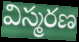
విస్మరణ